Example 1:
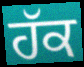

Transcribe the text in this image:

ਹੱਕ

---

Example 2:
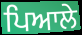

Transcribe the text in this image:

ਪਿਆਲੇ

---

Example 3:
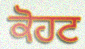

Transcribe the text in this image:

ਕੋਹਟ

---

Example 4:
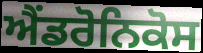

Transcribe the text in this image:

ਐਂਡਰੋਨਿਕੋਸ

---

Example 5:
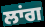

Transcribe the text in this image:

ਲਾਂਗ